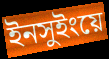
ইনসুইংয়ে